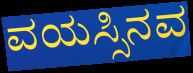
ವಯಸ್ಸಿನವ